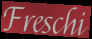
Freschi